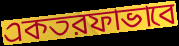
একতরফাভাবে